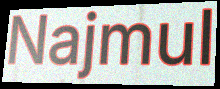
Najmul